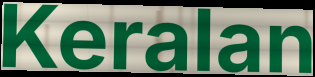
Keralan